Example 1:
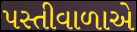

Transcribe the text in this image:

પસ્તીવાળાએ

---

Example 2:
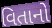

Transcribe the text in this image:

વિતાનો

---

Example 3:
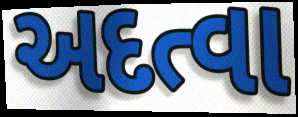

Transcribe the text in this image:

અદત્વા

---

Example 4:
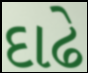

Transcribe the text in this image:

દાઢે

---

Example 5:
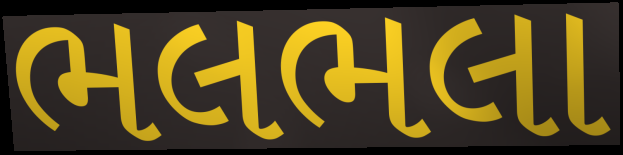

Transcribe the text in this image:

ભલભલા